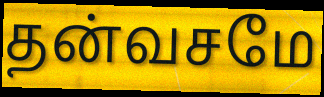
தன்வசமே